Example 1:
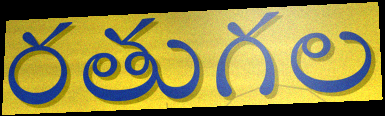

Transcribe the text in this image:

రతుగల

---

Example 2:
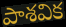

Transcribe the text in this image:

పాశవిక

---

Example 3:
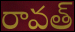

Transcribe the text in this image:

రావత్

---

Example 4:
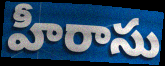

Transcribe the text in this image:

హీరాసు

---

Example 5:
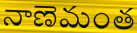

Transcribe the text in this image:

నాణెమంత